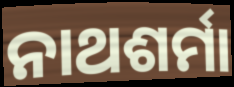
ନାଥଶର୍ମା